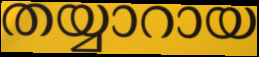
തയ്യാറായ